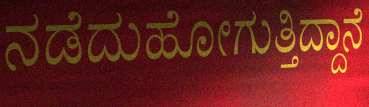
ನಡೆದುಹೋಗುತ್ತಿದ್ದಾನೆ